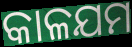
କାଳଯମ